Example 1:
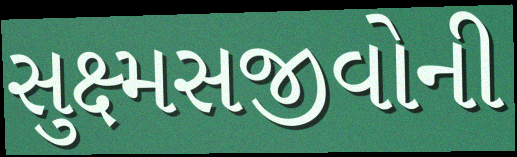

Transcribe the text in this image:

સુક્ષ્મસજીવોની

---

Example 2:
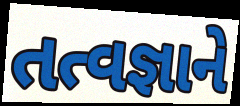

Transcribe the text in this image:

તત્વજ્ઞાને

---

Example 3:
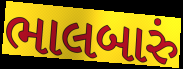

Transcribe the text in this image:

ભાલબારું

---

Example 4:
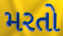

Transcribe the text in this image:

મરતો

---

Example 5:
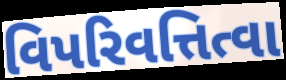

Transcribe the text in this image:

વિપરિવત્તિત્વા